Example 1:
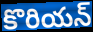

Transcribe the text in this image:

కొరియన్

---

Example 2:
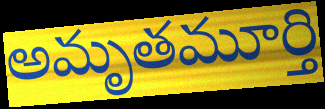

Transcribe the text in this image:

అమృతమూర్తి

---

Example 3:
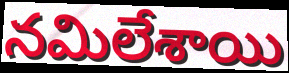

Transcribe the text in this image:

నమిలేశాయి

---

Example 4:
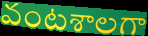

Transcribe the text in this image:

వంటశాలగా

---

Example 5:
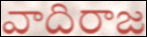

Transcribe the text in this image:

వాదిరాజ